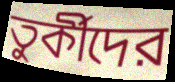
তুর্কীদের